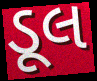
ડૂલ